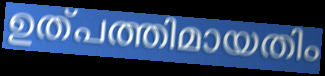
ഉത്പത്തിമായതിം